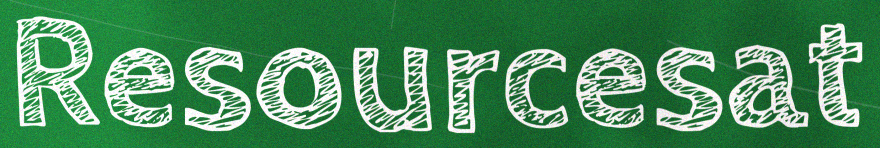
Resourcesat